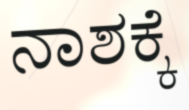
ನಾಶಕ್ಕೆ